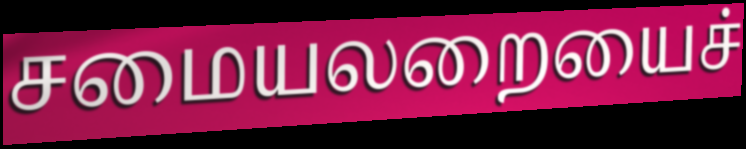
சமையலறையைச்